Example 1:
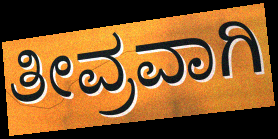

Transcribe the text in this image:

ತೀವ್ರವಾಗಿ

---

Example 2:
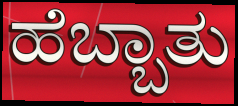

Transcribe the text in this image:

ಹೆಬ್ಬಾತು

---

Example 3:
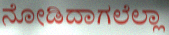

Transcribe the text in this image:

ನೋಡಿದಾಗಲೆಲ್ಲಾ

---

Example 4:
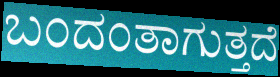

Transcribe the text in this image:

ಬಂದಂತಾಗುತ್ತದೆ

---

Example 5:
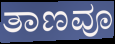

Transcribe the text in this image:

ತಾಣವೂ